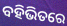
ବହିଭିତରେ